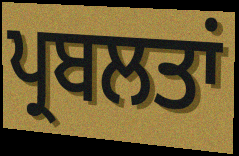
ਪ੍ਰਬਲਤਾਂ